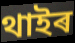
থাইৰ